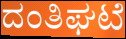
ದಂತಿಘಟೆ